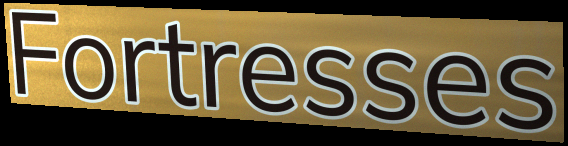
Fortresses